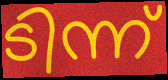
ടിന്ന്